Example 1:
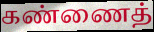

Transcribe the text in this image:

கண்ணைத்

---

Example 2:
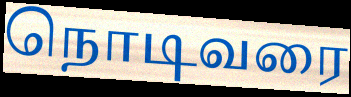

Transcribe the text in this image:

நொடிவரை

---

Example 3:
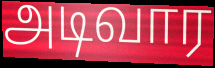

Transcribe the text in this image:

அடிவார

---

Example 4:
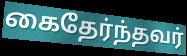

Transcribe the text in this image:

கைதேர்ந்தவர்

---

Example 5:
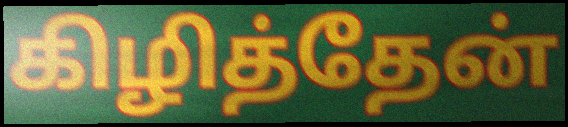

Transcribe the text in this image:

கிழித்தேன்